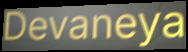
Devaneya